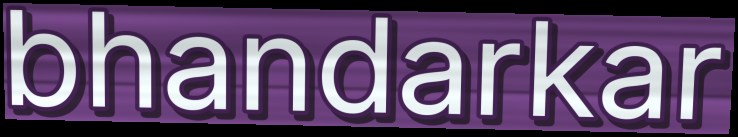
bhandarkar